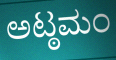
ಅಟ್ಠಮಂ